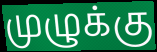
முழுக்கு